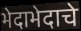
भेदाभेदाचे